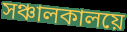
সঞ্চালকালয়ে